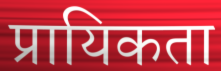
प्रायिकता